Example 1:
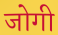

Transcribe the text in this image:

जोगी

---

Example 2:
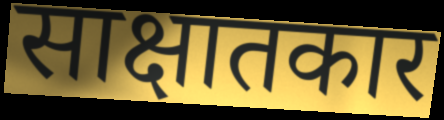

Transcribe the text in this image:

साक्षातकार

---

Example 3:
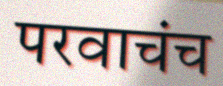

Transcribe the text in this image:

परवाचंच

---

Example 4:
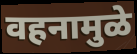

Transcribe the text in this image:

वहनामुळे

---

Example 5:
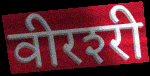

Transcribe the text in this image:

वीरश्री